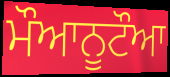
ਮੌਆਨੂਟੌਆ